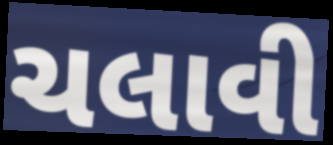
ચલાવી